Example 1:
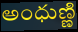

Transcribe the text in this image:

అంధుణ్ణి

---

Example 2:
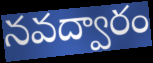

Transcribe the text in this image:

నవద్వారం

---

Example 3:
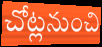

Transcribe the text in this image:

చోట్లనుంచి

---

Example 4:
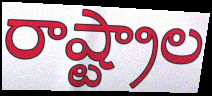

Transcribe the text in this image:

రాష్ట్రాల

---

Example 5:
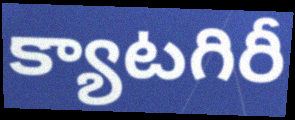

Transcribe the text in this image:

క్యాటగిరీ